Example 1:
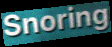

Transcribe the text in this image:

Snoring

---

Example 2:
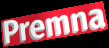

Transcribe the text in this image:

Premna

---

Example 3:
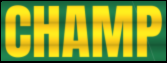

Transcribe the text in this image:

CHAMP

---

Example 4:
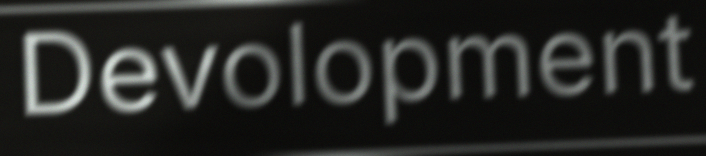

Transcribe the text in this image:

Devolopment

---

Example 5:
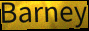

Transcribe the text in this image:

Barney